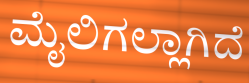
ಮೈಲಿಗಲ್ಲಾಗಿದೆ